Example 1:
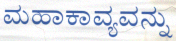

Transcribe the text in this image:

ಮಹಾಕಾವ್ಯವನ್ನು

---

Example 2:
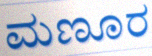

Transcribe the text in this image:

ಮಣೂರ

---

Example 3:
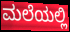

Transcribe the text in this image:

ಮಲೆಯಲ್ಲಿ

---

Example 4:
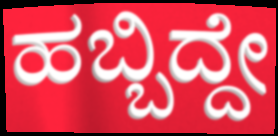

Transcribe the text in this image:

ಹಬ್ಬಿದ್ದೇ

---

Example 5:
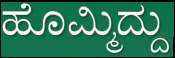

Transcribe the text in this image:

ಹೊಮ್ಮಿದ್ದು